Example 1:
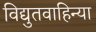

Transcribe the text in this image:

विद्युतवाहिन्या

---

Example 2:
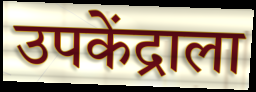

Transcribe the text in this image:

उपकेंद्राला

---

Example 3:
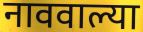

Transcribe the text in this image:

नाववाल्या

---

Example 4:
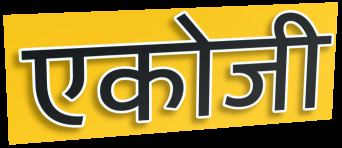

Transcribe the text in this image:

एकोजी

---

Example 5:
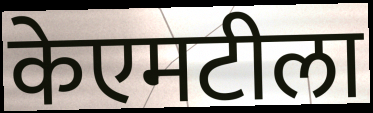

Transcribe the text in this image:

केएमटीला